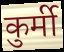
कुर्मी